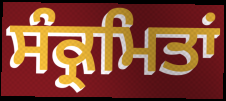
ਸੰਕ੍ਰਮਿਤਾਂ